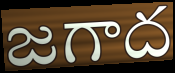
జగాద